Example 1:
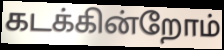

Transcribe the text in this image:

கடக்கின்றோம்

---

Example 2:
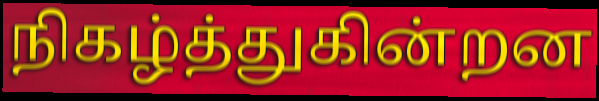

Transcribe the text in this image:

நிகழ்த்துகின்றன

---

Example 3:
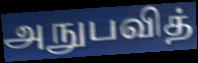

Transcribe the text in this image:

அநுபவித்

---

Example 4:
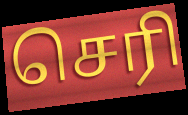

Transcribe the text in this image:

செரி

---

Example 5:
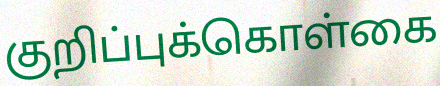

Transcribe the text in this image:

குறிப்புக்கொள்கை